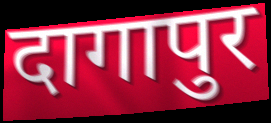
दागापुर